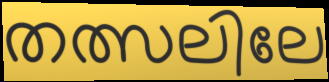
തത്സലിലേ